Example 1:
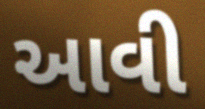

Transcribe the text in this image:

આવી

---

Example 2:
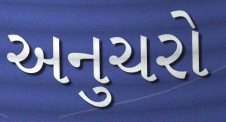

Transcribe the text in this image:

અનુચરો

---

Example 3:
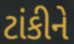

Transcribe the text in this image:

ટાંકીને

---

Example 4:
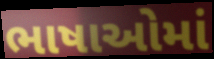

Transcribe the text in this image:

ભાષાઓમાં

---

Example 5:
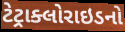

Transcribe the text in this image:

ટેટ્રાક્લોરાઇડનો